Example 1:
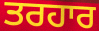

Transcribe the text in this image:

ਤਰਹਾਰ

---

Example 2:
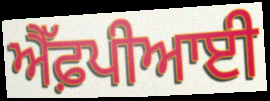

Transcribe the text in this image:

ਐੱਫ਼ਪੀਆਈ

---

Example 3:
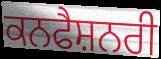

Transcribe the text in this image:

ਕਨਫੈਸ਼ਨਰੀ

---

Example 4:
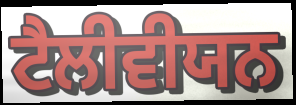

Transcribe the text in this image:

ਟੈਲੀਵੀਯਨ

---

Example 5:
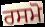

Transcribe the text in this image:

ਰਸਮੋ